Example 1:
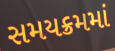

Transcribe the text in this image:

સમયક્રમમાં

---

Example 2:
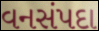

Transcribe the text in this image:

વનસંપદા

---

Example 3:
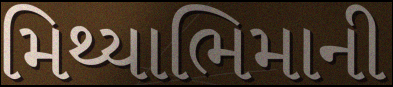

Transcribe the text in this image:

મિથ્યાભિમાની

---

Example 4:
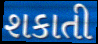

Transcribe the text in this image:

શકાતી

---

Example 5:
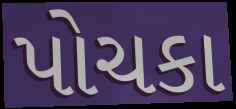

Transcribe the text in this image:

પોચકા